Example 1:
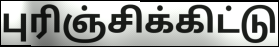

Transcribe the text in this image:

புரிஞ்சிக்கிட்டு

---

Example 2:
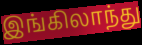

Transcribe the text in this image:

இங்கிலாந்து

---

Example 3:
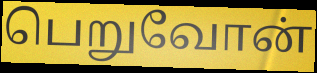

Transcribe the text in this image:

பெறுவோன்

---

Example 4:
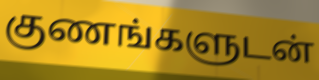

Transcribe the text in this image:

குணங்களுடன்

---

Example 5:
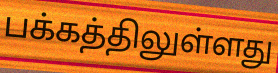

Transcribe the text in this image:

பக்கத்திலுள்ளது